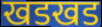
खडखड